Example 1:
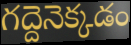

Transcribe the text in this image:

గద్దెనెక్కడం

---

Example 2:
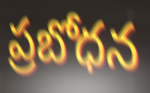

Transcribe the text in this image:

ప్రబోధన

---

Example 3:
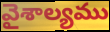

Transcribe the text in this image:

వైశాల్యము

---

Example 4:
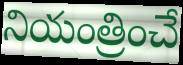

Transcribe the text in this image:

నియంత్రించే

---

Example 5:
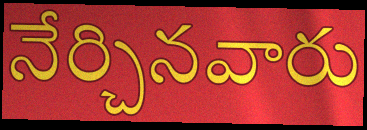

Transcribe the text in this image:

నేర్చినవారు